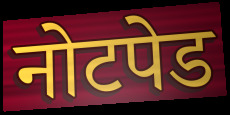
नोटपेड